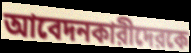
আবেদনকারীদেরকে